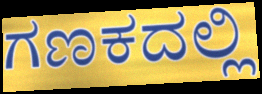
ಗಣಕದಲ್ಲಿ